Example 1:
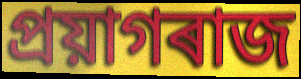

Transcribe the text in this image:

প্ৰয়াগৰাজ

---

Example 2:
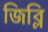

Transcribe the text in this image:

জিব্লি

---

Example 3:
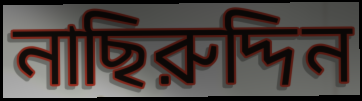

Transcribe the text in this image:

নাছিৰুদ্দিন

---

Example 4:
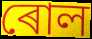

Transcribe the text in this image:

ৰোল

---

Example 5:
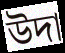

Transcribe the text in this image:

উদা